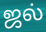
ஜல்